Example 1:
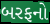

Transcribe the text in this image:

બરફનો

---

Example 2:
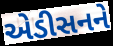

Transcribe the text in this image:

એડીસનને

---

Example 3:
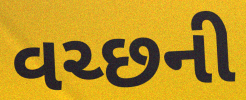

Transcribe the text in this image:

વચ્છની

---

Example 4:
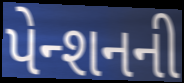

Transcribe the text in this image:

પેન્શનની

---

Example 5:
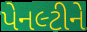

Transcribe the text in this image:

પેનલ્ટીને